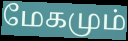
மேகமும்